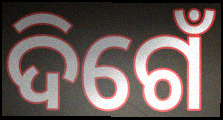
ଦିଗେଁ